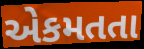
એકમતતા